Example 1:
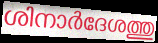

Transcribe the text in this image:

ശിനാർദേശത്തു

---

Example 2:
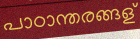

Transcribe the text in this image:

പാഠാന്തരങ്ങള്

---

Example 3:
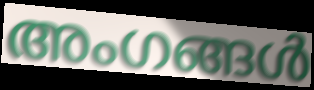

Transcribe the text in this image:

അംഗങ്ങൾ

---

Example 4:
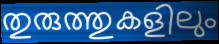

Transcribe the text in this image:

തുരുത്തുകളിലും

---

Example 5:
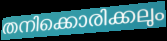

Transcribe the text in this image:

തനിക്കൊരിക്കലും